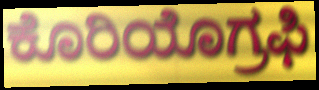
ಕೊರಿಯೊಗ್ರಫಿ